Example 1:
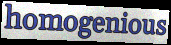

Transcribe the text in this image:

homogenious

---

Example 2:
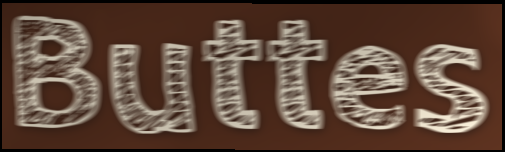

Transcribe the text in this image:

Buttes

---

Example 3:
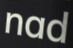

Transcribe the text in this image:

nad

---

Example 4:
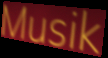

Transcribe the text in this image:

Musik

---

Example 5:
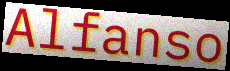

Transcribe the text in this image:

Alfanso